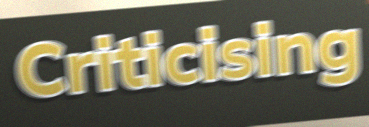
Criticising